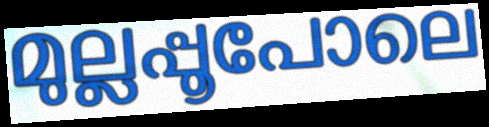
മുല്ലപ്പൂപോലെ